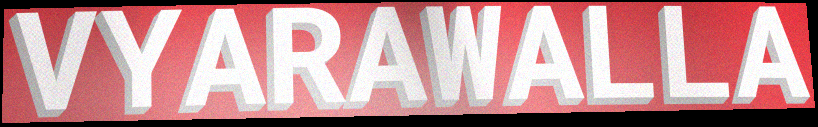
VYARAWALLA